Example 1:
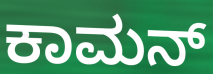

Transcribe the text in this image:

ಕಾಮನ್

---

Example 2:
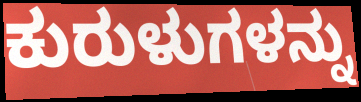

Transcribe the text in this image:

ಕುರುಳುಗಳನ್ನು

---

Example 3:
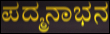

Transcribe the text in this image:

ಪದ್ಮನಾಭನ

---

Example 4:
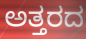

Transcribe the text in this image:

ಅತ್ತರದ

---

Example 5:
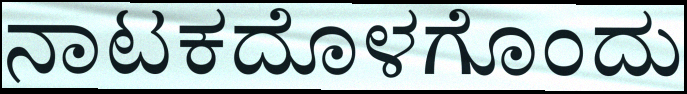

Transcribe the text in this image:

ನಾಟಕದೊಳಗೊಂದು